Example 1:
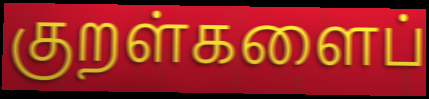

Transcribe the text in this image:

குறள்களைப்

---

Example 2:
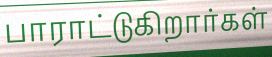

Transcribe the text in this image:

பாராட்டுகிறார்கள்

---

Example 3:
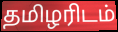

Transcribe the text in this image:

தமிழரிடம்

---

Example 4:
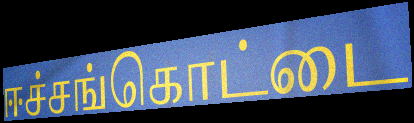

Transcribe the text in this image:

ஈச்சங்கொட்டை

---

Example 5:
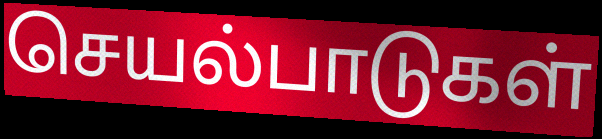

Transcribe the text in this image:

செயல்பாடுகள்